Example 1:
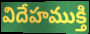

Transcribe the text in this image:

విదేహముక్తి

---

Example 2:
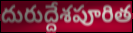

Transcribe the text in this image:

దురుద్దేశపూరిత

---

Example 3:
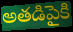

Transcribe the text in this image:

అతడిపైకి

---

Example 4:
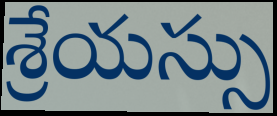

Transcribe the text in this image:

శ్రేయస్సు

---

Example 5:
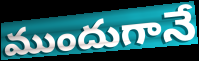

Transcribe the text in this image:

ముందుగానే